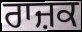
ਰਾਜ਼ਕ